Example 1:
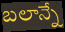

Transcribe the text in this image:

బలాన్నే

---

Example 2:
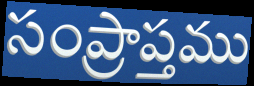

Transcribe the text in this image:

సంప్రాప్తము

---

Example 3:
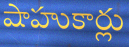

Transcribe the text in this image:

షాహుకార్లు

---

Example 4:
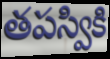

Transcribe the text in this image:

తపస్వికి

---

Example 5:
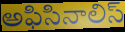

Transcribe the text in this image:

అఫిసినాలిస్